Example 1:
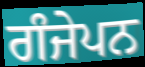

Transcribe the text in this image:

ਗੰਜੇਪਨ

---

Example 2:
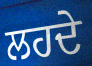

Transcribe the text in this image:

ਲਹਦੇ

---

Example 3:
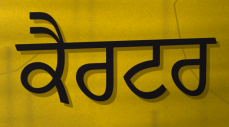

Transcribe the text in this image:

ਕੈਰਟਰ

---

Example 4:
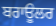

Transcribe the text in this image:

ਬਰਾਊਲਰ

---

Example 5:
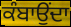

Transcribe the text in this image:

ਕੰਬਾਉਂਦਾ